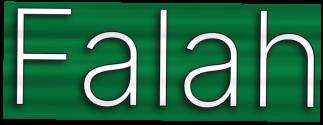
Falah